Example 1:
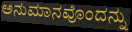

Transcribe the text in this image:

ಅನುಮಾನವೊಂದನ್ನು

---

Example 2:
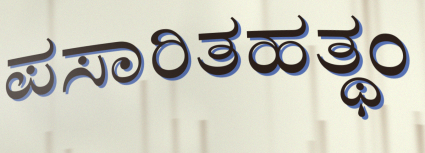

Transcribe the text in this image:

ಪಸಾರಿತಹತ್ಥಂ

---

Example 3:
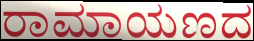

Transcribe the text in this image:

ರಾಮಾಯಣದ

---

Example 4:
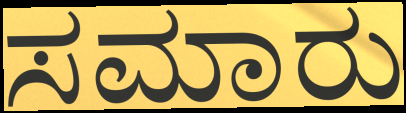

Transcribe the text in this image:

ಸಮಾರು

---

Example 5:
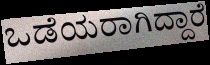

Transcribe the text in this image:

ಒಡೆಯರಾಗಿದ್ದಾರೆ